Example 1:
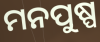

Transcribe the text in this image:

ମନପୁଷ୍ପ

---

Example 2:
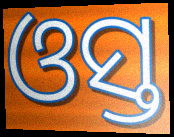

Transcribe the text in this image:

ଓସ୍ତ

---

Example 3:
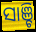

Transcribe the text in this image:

ସାଞ୍ଚି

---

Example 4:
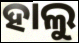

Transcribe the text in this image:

ହାଲୁ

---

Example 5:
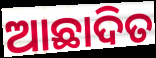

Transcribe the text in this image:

ଆଛାଦିତ